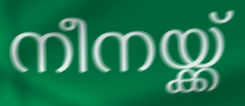
നീനയ്ക്ക്